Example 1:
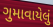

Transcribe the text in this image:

ગુમાવાયેલું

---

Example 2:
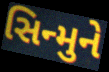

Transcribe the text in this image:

સિન્મુને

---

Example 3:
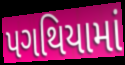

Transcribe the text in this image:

પગથિયામાં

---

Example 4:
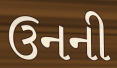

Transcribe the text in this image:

ઉનની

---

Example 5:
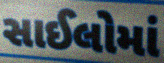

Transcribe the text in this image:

સાઈલોમાં